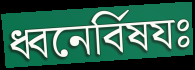
ধ্বনের্বিষযঃ